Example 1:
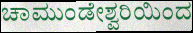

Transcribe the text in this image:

ಚಾಮುಂಡೇಶ್ವರಿಯಿಂದ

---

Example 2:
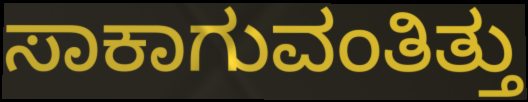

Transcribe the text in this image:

ಸಾಕಾಗುವಂತಿತ್ತು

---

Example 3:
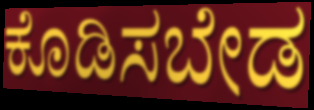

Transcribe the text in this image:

ಕೊಡಿಸಬೇಡ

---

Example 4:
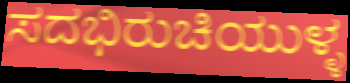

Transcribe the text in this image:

ಸದಭಿರುಚಿಯುಳ್ಳ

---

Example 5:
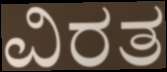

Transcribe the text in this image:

ವಿರತ